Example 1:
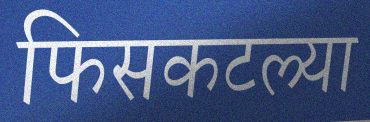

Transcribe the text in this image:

फिसकटल्या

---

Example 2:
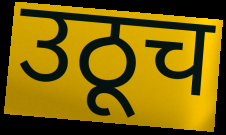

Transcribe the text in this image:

उठूच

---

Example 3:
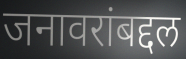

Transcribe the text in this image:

जनावरांबद्दल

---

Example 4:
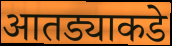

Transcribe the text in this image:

आतड्याकडे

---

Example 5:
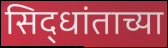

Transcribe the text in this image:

सिद्धांताच्या